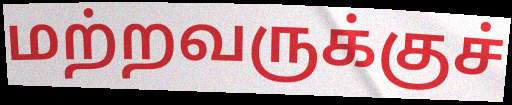
மற்றவருக்குச்